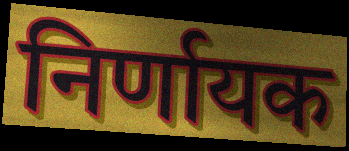
निर्णायक